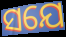
ସଯେ